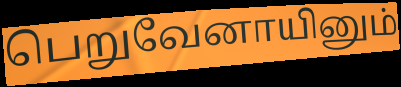
பெறுவேனாயினும்